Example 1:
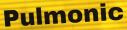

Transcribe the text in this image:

Pulmonic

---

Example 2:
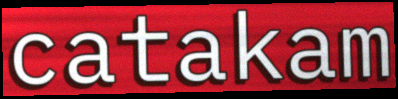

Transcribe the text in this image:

catakam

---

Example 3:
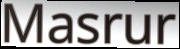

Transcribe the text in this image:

Masrur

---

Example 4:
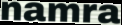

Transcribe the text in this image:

namra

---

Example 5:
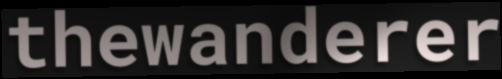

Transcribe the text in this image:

thewanderer